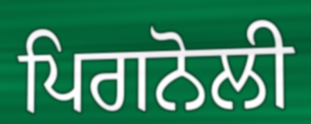
ਪਿਗਨੋਲੀ